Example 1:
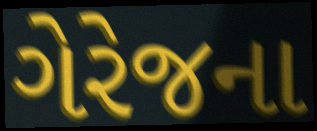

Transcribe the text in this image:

ગેરેજના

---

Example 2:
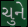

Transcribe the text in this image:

ચુને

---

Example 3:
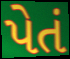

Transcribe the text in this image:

પેતં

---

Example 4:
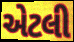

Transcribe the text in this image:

એટલી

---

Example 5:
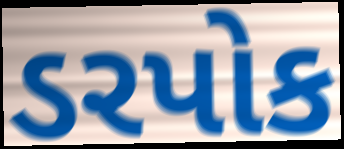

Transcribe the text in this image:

ડરપોક